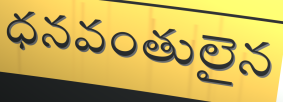
ధనవంతులైన